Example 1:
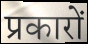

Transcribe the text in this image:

प्रकारों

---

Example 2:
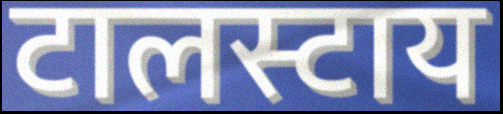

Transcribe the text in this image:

टालस्टाय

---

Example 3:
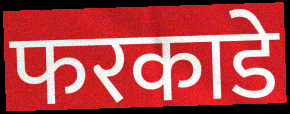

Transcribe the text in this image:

फरकाडे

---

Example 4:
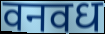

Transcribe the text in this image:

वनवध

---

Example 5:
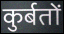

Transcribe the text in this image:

कुर्बतों